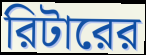
রিটারের